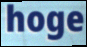
hoge